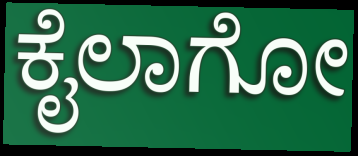
ಕೈಲಾಗೋ